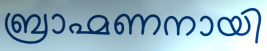
ബ്രാഹ്മണനായി